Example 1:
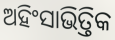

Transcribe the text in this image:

ଅହିଂସାଭିତ୍ତିକ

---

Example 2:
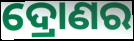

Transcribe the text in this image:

ଦ୍ରୋଣର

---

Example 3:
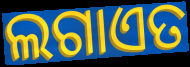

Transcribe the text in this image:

ଲଗାଏତ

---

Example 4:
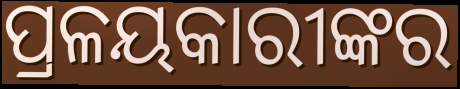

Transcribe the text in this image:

ପ୍ରଳୟକାରୀଙ୍କର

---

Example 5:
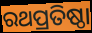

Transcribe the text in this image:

ରଥପ୍ରତିଷ୍ଠା